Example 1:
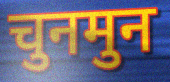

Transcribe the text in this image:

चुनमुन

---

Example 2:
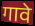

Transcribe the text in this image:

गावे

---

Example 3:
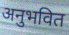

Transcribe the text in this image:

अनुभवित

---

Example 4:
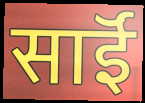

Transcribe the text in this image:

साईॅ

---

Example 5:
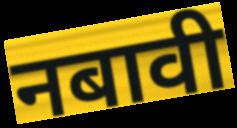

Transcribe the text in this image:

नबावी